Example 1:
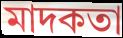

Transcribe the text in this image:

মাদকতা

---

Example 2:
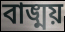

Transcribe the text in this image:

বাঙ্ময়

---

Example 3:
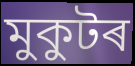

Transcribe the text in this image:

মুকুটৰ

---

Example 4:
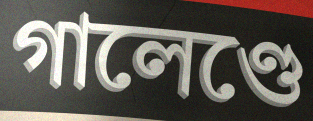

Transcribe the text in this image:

গালেণ্ডে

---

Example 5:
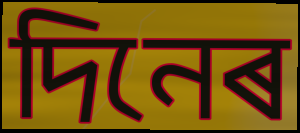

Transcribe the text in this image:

দিনেৰ